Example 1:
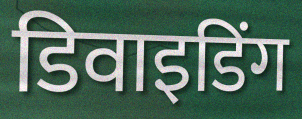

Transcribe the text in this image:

डिवाइडिंग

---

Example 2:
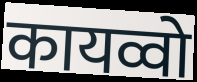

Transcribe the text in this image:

कायव्वो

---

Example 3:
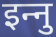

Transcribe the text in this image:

इन्नु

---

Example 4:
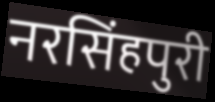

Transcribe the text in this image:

नरसिंहपुरी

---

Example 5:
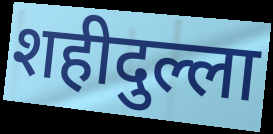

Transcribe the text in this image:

शहीदुल्ला